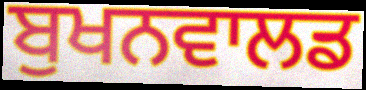
ਬੁਖਨਵਾਲਡ